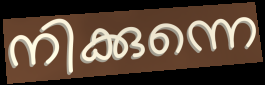
നിക്കുന്നെ